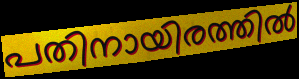
പതിനായിരത്തിൽ